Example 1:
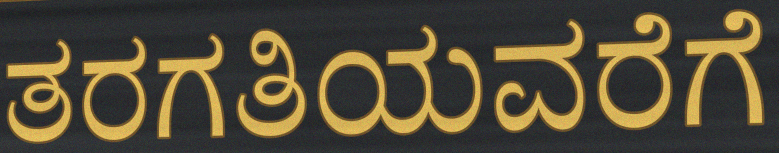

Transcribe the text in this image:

ತರಗತಿಯವರೆಗೆ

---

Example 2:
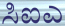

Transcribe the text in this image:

ಸಿಐಎ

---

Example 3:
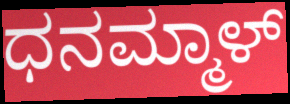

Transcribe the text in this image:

ಧನಮ್ಮಾಳ್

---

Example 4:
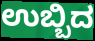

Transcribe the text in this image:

ಉಬ್ಬಿದ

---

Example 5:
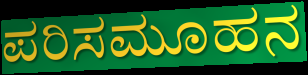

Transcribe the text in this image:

ಪರಿಸಮೂಹನ